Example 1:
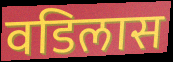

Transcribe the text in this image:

वडिलास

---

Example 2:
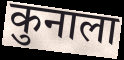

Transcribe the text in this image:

कुनाला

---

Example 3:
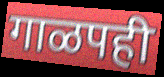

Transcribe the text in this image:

गाळपही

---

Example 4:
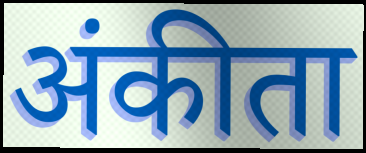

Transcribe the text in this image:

अंकीता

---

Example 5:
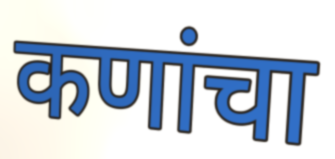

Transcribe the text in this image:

कणांचा